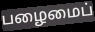
பழைமைப்